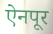
ऐनपूर